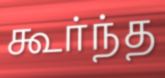
கூர்ந்த